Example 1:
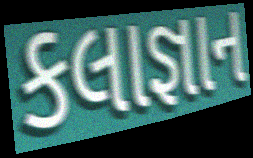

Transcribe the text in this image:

કલાજ્ઞાન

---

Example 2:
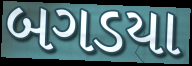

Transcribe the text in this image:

બગડયા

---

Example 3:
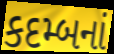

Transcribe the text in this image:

કદમ્બનાં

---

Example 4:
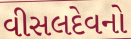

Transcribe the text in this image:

વીસલદેવનો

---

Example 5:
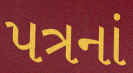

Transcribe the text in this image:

પત્રનાં